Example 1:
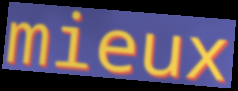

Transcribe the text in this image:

mieux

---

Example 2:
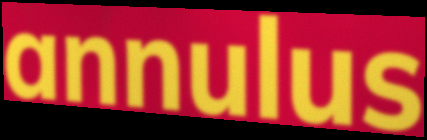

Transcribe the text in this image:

annulus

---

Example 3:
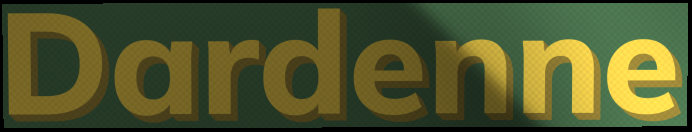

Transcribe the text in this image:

Dardenne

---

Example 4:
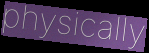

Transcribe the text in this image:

physically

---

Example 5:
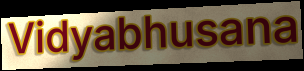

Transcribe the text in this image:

Vidyabhusana